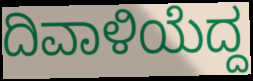
ದಿವಾಳಿಯೆದ್ದ